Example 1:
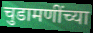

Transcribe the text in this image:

चुडामणींच्या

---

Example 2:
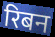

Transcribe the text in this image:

रिबन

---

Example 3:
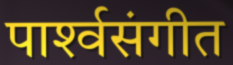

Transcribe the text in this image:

पार्श्‍वसंगीत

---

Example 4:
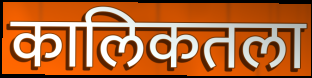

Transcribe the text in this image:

कालिकतला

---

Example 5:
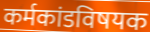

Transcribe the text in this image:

कर्मकांडविषयक